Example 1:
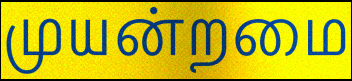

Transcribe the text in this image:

முயன்றமை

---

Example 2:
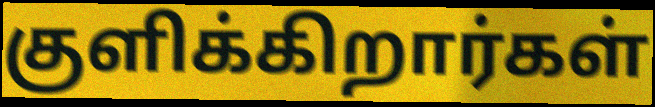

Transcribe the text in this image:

குளிக்கிறார்கள்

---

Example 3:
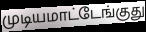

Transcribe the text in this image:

முடியமாட்டேங்குது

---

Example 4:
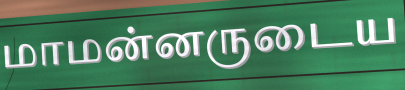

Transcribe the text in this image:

மாமன்னருடைய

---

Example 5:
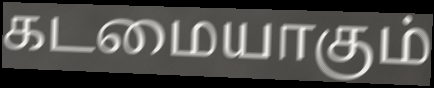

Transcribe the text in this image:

கடமையாகும்